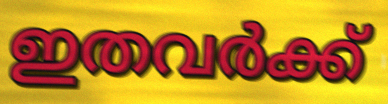
ഇതവർക്ക്